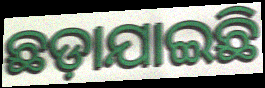
ଛଡ଼ାଯାଇଛି